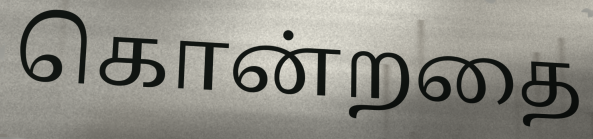
கொன்றதை